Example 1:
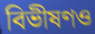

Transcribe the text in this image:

বিভীষণও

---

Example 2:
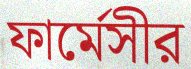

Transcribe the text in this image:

ফার্মেসীর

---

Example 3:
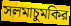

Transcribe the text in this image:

সলমাচুমকির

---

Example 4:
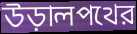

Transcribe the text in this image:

উড়ালপথের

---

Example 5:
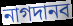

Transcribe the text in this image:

নাগদানব